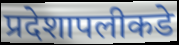
प्रदेशापलीकडे